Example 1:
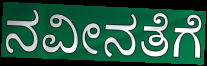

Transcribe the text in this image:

ನವೀನತೆಗೆ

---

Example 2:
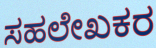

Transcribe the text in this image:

ಸಹಲೇಖಕರ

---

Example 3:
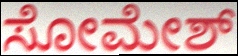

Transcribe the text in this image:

ಸೋಮೇಶ್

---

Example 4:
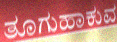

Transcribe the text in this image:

ತೂಗುಹಾಕುವ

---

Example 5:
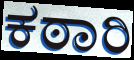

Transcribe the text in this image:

ಕಠಾರಿ